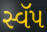
સ્વૅપ